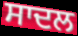
ਸਾਦਲ